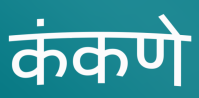
कंकणे